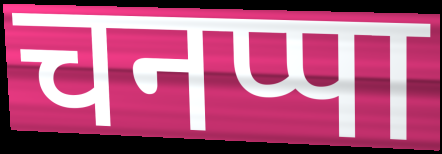
चनप्पा